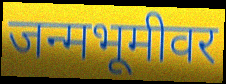
जन्मभूमीवर